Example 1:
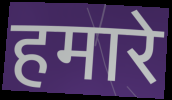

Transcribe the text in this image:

हमारे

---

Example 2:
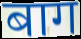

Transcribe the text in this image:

बाग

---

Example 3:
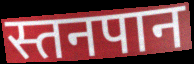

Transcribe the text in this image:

स्तनपान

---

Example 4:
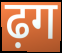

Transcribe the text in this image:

ढ़ग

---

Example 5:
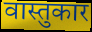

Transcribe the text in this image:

वास्तुकार